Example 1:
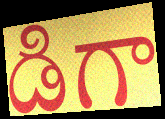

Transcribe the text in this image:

డిగా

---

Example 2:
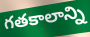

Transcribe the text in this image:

గతకాలాన్ని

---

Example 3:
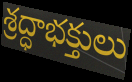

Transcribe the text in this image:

శ్రద్ధాభక్తులు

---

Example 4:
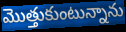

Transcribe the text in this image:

మొత్తుకుంటున్నాను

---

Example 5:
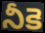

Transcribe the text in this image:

నీకె